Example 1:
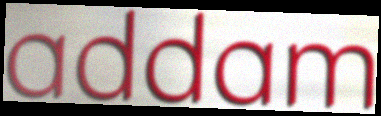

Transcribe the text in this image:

addam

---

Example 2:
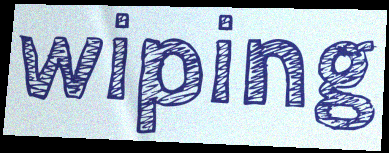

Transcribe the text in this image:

wiping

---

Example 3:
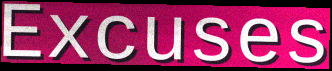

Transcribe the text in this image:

Excuses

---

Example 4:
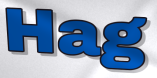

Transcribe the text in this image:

Hag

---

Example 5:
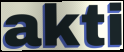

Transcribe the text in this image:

akti